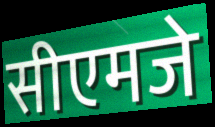
सीएमजे